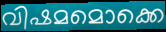
വിഷമമൊക്കെ